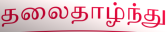
தலைதாழ்ந்து